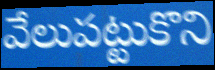
వేలుపట్టుకొని